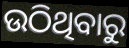
ଉଠିଥିବାରୁ